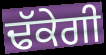
ਢੱਕੇਗੀ